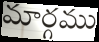
మార్గము